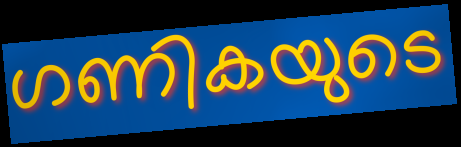
ഗണികയുടെ